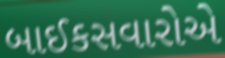
બાઈકસવારોએ